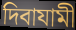
দিবাযামী